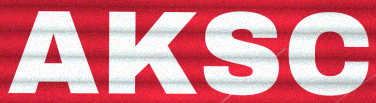
AKSC